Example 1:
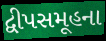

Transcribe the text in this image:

દ્વીપસમૂહના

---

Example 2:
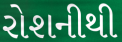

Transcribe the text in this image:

રોશનીથી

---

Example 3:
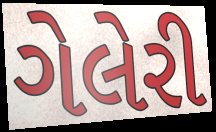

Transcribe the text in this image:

ગેલેરી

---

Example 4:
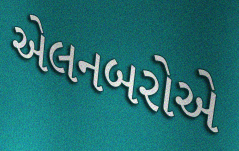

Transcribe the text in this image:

એલનબરોએ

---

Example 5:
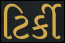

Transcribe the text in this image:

ટિર્કી